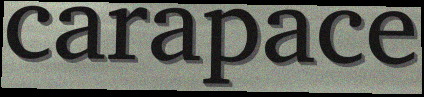
carapace